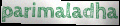
parimaladha